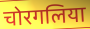
चोरगलिया